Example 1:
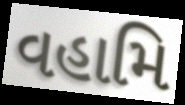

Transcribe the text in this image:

વહામિ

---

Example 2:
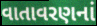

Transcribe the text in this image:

વાતાવરણનાં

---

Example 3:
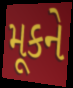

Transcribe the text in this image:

મૂકને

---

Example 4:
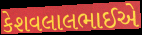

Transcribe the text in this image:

કેશવલાલભાઈએ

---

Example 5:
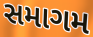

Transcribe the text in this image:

સમાગમ